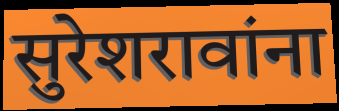
सुरेशरावांना